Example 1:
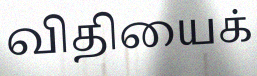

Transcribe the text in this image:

விதியைக்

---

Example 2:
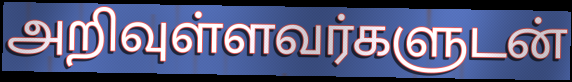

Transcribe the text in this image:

அறிவுள்ளவர்களுடன்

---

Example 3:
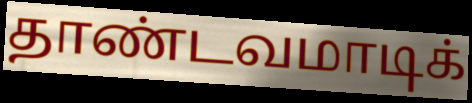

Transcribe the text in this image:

தாண்டவமாடிக்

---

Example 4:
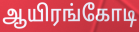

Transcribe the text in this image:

ஆயிரங்கோடி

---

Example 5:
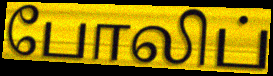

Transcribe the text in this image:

போலிப்